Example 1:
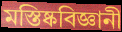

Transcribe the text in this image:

মস্তিষ্কবিজ্ঞানী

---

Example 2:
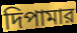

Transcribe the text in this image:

দিপামার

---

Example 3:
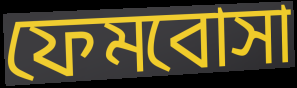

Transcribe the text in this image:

ফেমবোসা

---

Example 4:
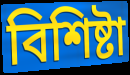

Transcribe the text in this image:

বিশিষ্টা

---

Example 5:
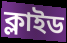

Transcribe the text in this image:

ক্লাইড